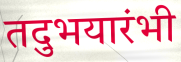
तदुभयारंभी